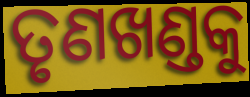
ତୃଣଖଣ୍ଡକୁ